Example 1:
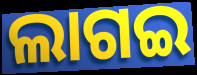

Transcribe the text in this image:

ଲାଗଇ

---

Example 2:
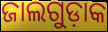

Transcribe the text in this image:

ଜାଲଗୁଡ଼ାକ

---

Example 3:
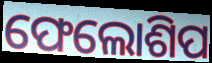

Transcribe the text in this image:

ଫେଲୋଶିପ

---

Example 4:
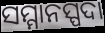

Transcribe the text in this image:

ସମ୍ମାନସ୍ପଦା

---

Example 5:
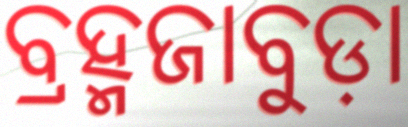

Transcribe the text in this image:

ବ୍ରହ୍ମଜାବୁଡ଼ା